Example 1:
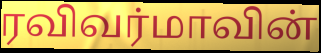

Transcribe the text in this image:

ரவிவர்மாவின்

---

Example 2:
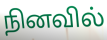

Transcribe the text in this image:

நினவில்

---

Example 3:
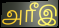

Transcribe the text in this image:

அரீஇ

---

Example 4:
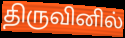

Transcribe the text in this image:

திருவினில்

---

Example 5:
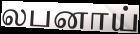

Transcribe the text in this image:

லபனாய்